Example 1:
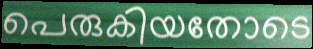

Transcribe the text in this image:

പെരുകിയതോടെ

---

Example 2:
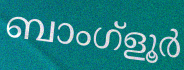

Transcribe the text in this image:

ബാംഗ്ളൂർ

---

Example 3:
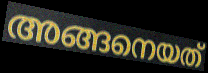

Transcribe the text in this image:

അങ്ങനെയത്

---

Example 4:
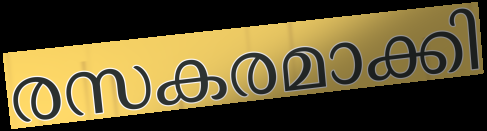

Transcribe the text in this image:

രസകരമാക്കി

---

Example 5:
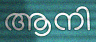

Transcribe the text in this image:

ആനി